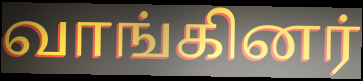
வாங்கினர்